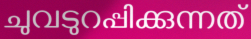
ചുവടുറപ്പിക്കുന്നത്